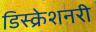
डिस्क्रेशनरी